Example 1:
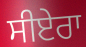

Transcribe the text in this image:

ਸੀਏਰਾ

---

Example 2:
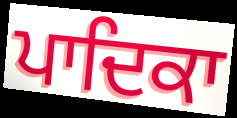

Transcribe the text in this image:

ਪਾਦਿਕਾ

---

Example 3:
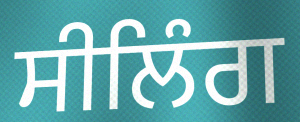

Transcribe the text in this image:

ਸੀਲਿੰਗ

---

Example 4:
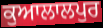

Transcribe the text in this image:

ਕੁਆਲਾਲਪੁਰ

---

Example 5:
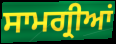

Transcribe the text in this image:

ਸਾਮਗ੍ਰੀਆਂ